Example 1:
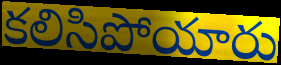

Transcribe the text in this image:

కలిసిపోయారు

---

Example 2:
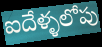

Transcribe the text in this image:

ఐదేళ్ళలోపు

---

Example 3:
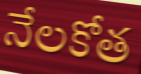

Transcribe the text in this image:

నేలకోత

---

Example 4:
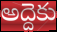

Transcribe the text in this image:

అద్దెకు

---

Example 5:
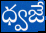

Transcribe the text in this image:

ధ్వజే